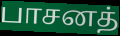
பாசனத்